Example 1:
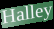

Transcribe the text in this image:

Halley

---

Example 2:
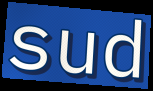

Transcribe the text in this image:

sud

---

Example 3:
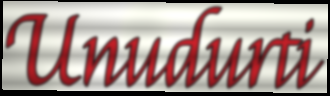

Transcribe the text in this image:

Unudurti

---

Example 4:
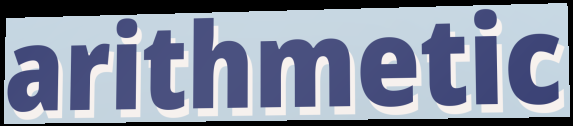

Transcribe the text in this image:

arithmetic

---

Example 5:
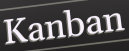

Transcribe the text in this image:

Kanban